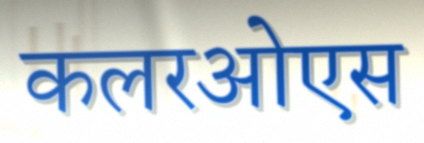
कलरओएस